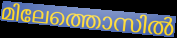
മിലേത്തൊസിൽ